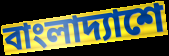
বাংলাদ্যাশে